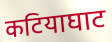
कटियाघाट